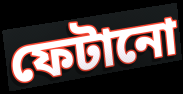
ফেটানো